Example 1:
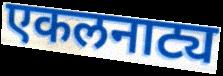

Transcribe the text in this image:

एकलनाट्य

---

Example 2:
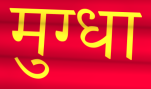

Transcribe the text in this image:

मुग्धा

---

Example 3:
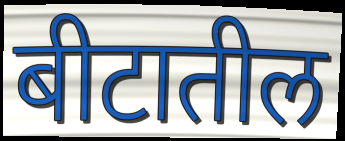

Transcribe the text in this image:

बीटातील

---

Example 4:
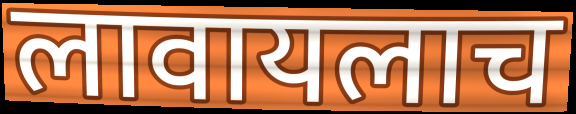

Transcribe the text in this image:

लावायलाच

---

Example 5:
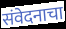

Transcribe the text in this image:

संवेदनाचा